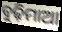
ବୁଢ଼ିମାଆ